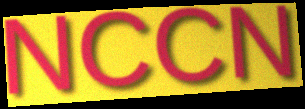
NCCN